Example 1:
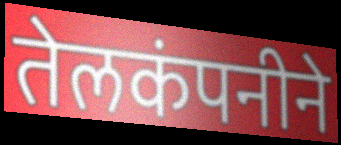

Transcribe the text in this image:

तेलकंपनीने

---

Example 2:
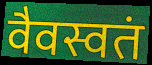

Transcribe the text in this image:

वैवस्वतं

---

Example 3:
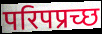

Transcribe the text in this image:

परिपप्रच्छ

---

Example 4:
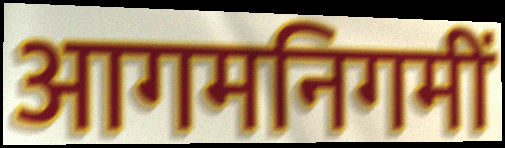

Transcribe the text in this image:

आगमनिगमीं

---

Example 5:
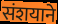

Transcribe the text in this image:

संशयाने